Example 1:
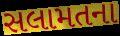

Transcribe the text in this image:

સલામતના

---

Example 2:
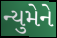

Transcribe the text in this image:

ન્યુમેને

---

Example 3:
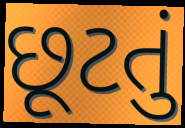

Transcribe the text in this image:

છૂટતું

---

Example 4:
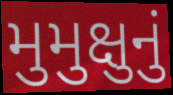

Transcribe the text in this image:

મુમુક્ષુનું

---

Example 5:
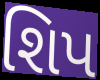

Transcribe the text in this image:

શિપ